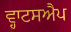
ਵ੍ਹਾਟਸਐਪ